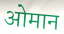
ओमान